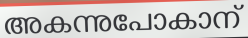
അകന്നുപോകാന്